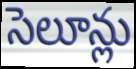
సెలూన్లు